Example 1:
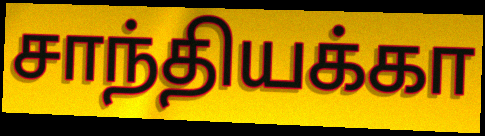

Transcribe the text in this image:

சாந்தியக்கா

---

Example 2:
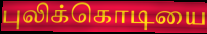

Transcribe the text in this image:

புலிக்கொடியை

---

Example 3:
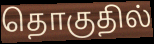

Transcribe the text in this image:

தொகுதில்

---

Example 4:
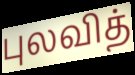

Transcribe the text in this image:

புலவித்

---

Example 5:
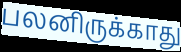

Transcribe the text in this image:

பலனிருக்காது